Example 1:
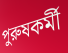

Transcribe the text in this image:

পুরুষকর্মী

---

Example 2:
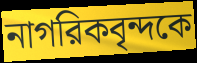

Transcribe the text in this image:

নাগরিকবৃন্দকে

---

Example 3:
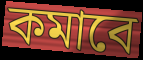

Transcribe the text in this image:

কমাবে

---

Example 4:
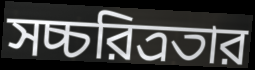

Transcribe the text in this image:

সচ্চরিত্রতার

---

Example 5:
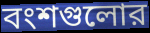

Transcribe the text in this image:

বংশগুলোর